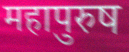
महापुरुष